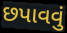
છપાવવું